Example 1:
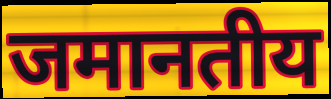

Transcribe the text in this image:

जमानतीय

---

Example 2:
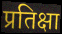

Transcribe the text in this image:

प्रतिक्षा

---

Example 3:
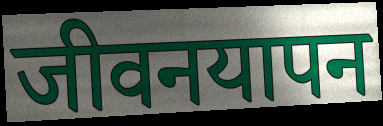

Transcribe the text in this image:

जीवनयापन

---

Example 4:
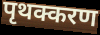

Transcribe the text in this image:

पृथक्करण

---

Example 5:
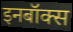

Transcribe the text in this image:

इनबॉक्स